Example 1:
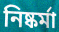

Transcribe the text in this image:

নিষ্কর্মা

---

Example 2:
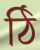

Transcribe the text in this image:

ঠি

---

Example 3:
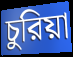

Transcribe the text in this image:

চুরিয়া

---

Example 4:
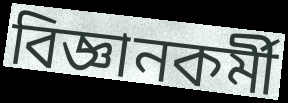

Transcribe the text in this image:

বিজ্ঞানকর্মী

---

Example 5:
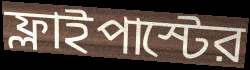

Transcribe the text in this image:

ফ্লাইপাস্টের